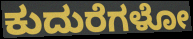
ಕುದುರೆಗಳೋ